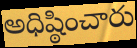
అధిష్ఠించారు